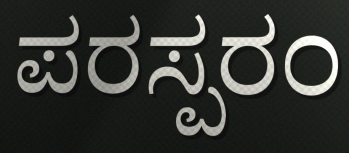
ಪರಸ್ಪರಂ